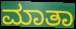
ಮಾತಾ